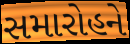
સમારોહને